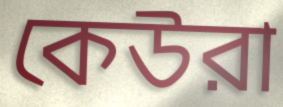
কেউরা